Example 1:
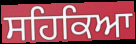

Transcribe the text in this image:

ਸਹਿਕਿਆ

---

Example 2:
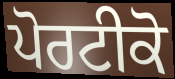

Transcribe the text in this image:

ਪੋਰਟੀਕੋ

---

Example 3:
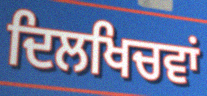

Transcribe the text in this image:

ਦਿਲਖਿਚਵਾਂ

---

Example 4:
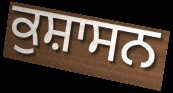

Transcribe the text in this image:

ਕੁਸ਼ਾਸਨ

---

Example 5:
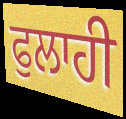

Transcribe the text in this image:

ਫੁਲਾਹੀ